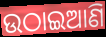
ଉଠାଇଆଣି